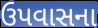
ઉપવાસના